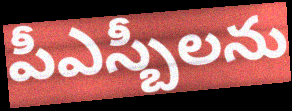
పీఎస్బీలను